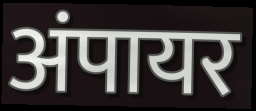
अंपायर